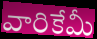
వారికేమీ